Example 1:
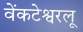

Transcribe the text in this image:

वेंकटेश्वरलू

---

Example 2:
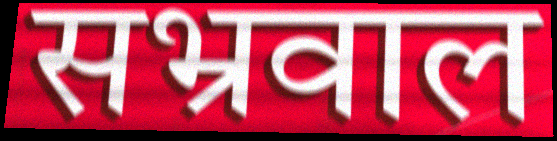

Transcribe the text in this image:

सभ्रवाल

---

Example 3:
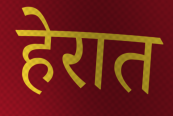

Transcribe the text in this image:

हेरात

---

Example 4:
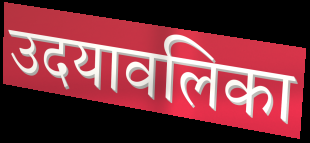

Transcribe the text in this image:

उदयावलिका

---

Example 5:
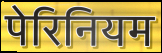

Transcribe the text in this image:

पेरिनियम